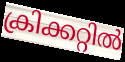
ക്രിക്കറ്റിൽ